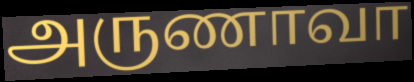
அருணாவா